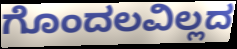
ಗೊಂದಲವಿಲ್ಲದ